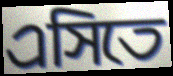
এসিতে